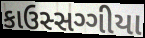
કાઉસ્સગ્ગીયા